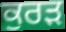
ਕੁਰੜ